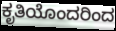
ಕೃತಿಯೊಂದರಿಂದ